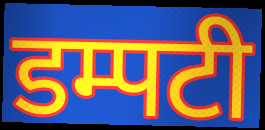
डम्पटी